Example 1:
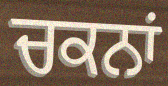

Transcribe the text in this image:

ਚਕਨਾਂ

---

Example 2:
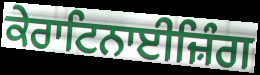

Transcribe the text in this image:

ਕੇਰਾਟਿਨਾਈਜ਼ਿੰਗ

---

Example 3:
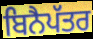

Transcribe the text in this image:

ਬਿਨੈਪੱਤਰ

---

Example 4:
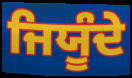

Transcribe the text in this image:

ਜਿਯੂੰਦੇ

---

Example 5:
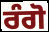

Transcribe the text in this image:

ਰੰਗੋ